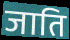
जाति